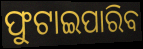
ଫୁଟାଇପାରିବ